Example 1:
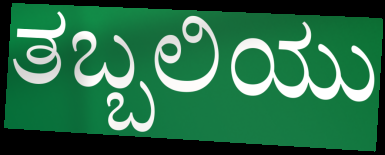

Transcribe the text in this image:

ತಬ್ಬಲಿಯು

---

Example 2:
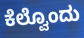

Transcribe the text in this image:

ಕೆಲ್ವೊಂದು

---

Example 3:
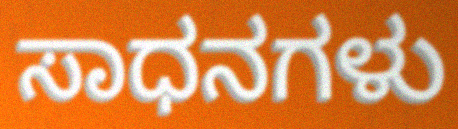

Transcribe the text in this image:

ಸಾಧನಗಳು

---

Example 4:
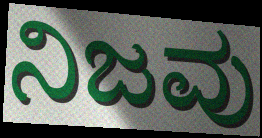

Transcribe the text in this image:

ನಿಜವು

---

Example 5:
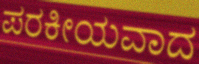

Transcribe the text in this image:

ಪರಕೀಯವಾದ